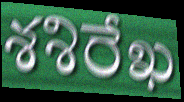
శశిరేఖ